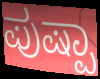
ಪುಷ್ಪಾ